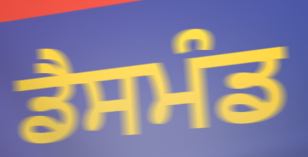
ਡੈਸਮੰਡ